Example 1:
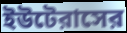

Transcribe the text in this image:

ইউটেরাসের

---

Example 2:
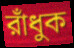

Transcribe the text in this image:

রাঁধুক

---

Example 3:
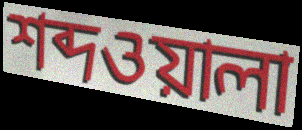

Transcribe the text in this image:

শব্দওয়ালা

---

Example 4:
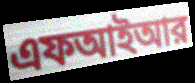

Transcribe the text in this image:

এফআইআর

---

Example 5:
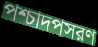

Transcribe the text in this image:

পশ্চাদপসরণ